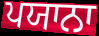
ਪਯਾਨਾ